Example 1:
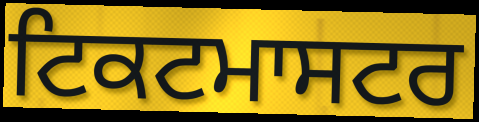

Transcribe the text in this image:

ਟਿਕਟਮਾਸਟਰ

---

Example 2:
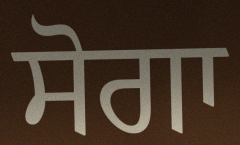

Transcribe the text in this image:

ਸੋਗਾ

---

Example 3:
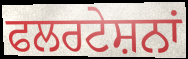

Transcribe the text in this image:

ਫਲਰਟੇਸ਼ਨਾਂ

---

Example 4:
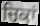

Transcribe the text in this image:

ਚਿਕਾਂ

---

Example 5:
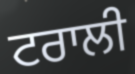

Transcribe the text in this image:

ਟਰਾਲੀ